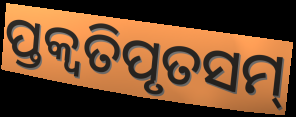
ପ୍ତକ୍ଵତିପୃତସମ୍